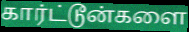
கார்ட்டூன்களை